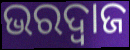
ଭରଦ୍ଵାଜ